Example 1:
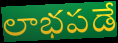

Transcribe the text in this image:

లాభపడే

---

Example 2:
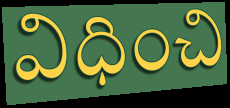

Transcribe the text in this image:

విధించి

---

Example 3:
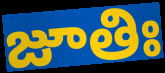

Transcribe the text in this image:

జూతిః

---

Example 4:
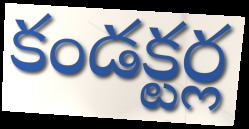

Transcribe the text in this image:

కండక్టర్ల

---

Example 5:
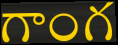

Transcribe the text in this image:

గాంగ